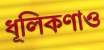
ধূলিকণাও